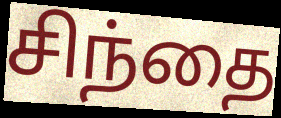
சிந்தை